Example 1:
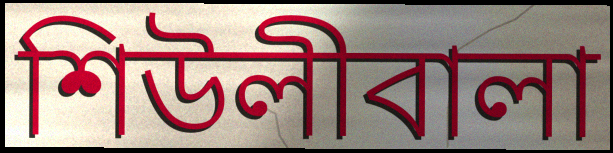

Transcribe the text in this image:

শিউলীবালা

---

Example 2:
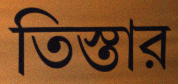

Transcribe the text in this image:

তিস্তার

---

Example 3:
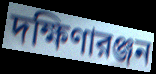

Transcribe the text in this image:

দক্ষিণারঞ্জন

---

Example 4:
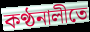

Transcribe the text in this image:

কণ্ঠনালীতে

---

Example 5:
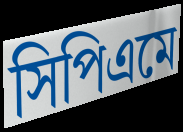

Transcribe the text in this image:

সিপিএমে